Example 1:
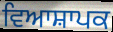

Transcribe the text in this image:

ਵਿਆਸ਼ਾਪਕ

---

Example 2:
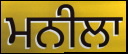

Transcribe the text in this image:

ਮਨੀਲਾ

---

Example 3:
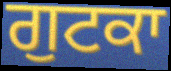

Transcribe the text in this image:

ਗੁਟਕਾ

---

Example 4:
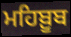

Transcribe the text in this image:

ਮਹਿਬ਼ੂਬ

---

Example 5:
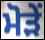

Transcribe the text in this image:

ਮੋੜੇਂ